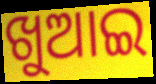
ଖୁଆଇ